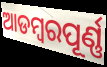
ଆଡମ୍ବରପୂର୍ଣ୍ଣ